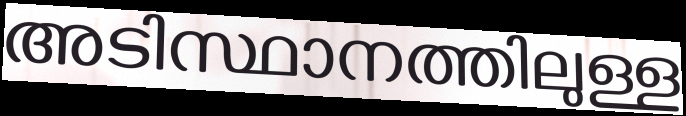
അടിസ്ഥാനത്തിലുള്ള